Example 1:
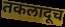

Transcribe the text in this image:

तकलादूच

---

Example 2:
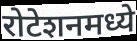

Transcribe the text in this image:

रोटेशनमध्ये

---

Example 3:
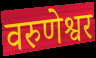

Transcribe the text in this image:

वरुणेश्वर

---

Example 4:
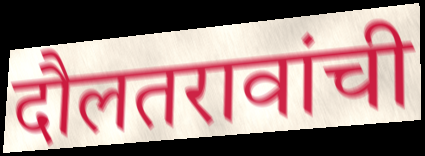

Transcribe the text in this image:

दौलतरावांची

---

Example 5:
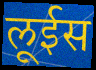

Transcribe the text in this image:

लूईस